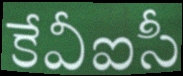
కేవీఐసీ